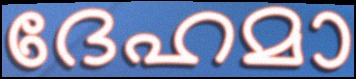
ദേഹമാ